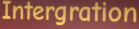
Intergration